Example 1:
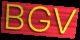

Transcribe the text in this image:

BGV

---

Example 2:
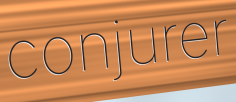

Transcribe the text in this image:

conjurer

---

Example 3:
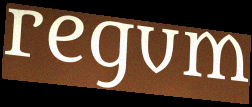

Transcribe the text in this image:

regum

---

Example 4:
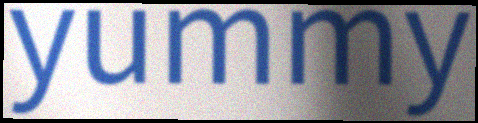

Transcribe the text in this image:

yummy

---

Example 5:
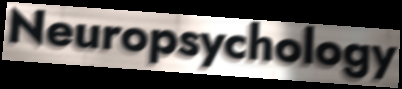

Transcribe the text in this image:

Neuropsychology